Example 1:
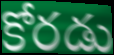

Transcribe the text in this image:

కోరడు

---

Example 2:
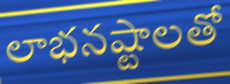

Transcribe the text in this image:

లాభనష్టాలతో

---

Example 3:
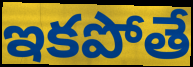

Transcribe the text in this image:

ఇకపోతే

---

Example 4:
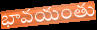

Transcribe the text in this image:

భావయంతు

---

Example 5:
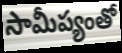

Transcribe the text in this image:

సామీప్యంతో